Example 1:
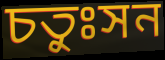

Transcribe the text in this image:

চতুঃসন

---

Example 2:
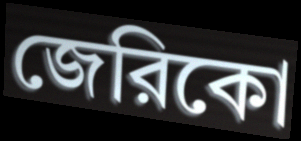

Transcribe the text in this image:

জেরিকো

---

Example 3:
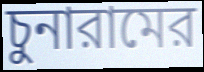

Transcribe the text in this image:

চুনারামের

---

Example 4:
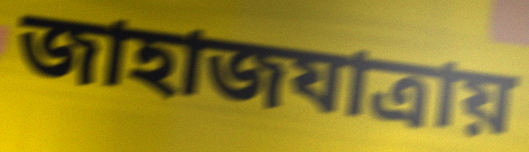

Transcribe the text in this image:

জাহাজযাত্রায়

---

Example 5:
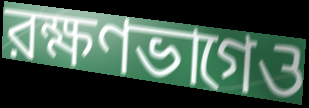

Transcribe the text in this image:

রক্ষণভাগেও